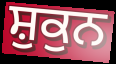
ਸ਼ੁਕੁਨ